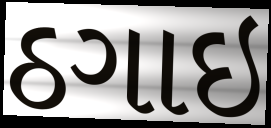
ઠગાઇ